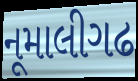
નૂમાલીગઢ